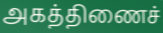
அகத்திணைச்